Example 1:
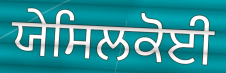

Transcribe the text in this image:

ਯੇਸਿਲਕੋਈ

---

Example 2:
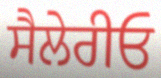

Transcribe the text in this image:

ਸੈਲੇਰੀਓ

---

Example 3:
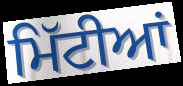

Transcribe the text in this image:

ਮਿੱਟੀਆਂ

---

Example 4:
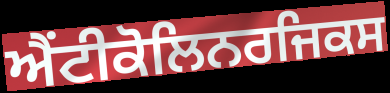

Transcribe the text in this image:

ਐਂਟੀਕੋਲਿਨਰਜਿਕਸ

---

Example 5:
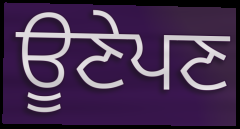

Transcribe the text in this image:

ਊਣੇਪਣ